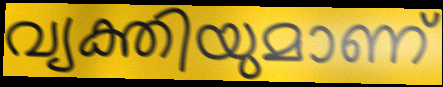
വ്യക്തിയുമാണ്